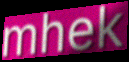
mhek